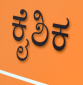
ಕೈಶಿಕ